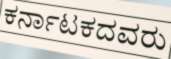
ಕರ್ನಾಟಕದವರು